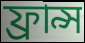
ফ্ৰান্স